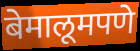
बेमालूमपणे